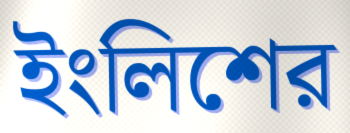
ইংলিশের